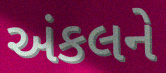
અંકલને